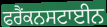
ਫਰੈਂਕਨਸਟਾਈਨ